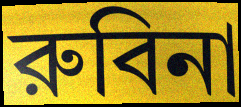
রুবিনা